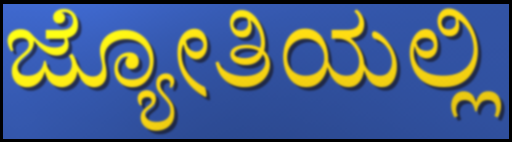
ಜ್ಯೋತಿಯಲ್ಲಿ